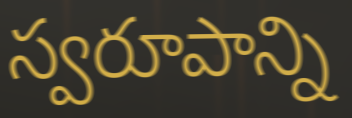
స్వరూపాన్ని